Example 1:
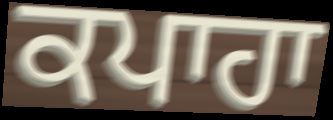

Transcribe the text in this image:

ਕਪਾਹਾ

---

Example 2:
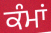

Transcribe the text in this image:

ਕੰਮਾਂ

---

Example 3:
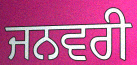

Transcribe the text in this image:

ਜਨਵਰੀ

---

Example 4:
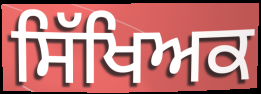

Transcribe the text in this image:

ਸਿੱਖਿਅਕ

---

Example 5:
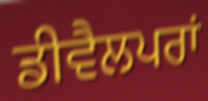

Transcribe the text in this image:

ਡੀਵੈਲਪਰਾਂ